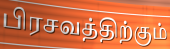
பிரசவத்திற்கும்